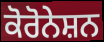
ਕੋਰੋਨੇਸ਼ਨ